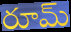
రూమ్